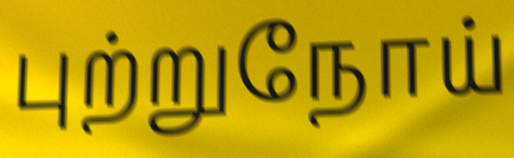
புற்றுநோய்